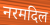
नरमदिल